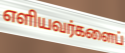
எளியவர்களைப்